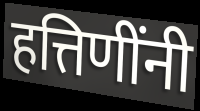
हत्तिणींनी